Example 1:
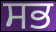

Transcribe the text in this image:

ਸਭ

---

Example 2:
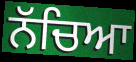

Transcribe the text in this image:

ਨੱਚਿਆ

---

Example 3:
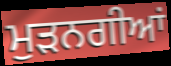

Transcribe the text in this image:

ਮੁੜਨਗੀਆਂ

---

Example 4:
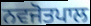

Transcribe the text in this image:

ਨਵਜੋਤਪਾਲ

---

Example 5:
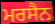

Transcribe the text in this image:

ਮਰਸੈਨ